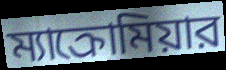
ম্যাক্রোমিয়ার